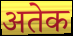
अतेक